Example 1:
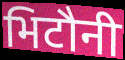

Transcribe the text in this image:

भिटौनी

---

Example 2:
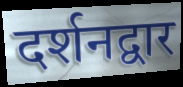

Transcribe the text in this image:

दर्शनद्वार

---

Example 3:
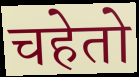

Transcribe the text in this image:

चहेतो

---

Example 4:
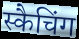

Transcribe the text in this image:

स्कैचिंग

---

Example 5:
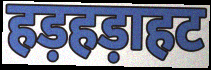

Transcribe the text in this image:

हड़हड़ाहट